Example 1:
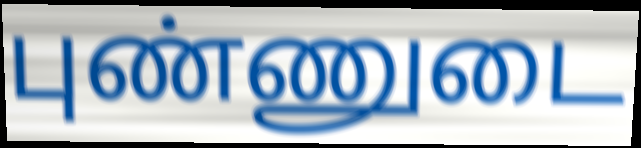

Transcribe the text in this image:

புண்ணுடை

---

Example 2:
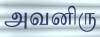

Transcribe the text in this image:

அவனிரு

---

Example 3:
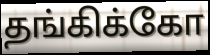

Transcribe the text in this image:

தங்கிக்கோ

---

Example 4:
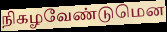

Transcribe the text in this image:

நிகழவேண்டுமென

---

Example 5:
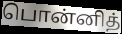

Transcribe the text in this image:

பொன்னித்